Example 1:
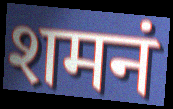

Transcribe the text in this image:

शमनं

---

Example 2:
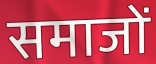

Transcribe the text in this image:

समाजों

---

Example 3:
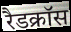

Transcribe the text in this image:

रैडक्रॉस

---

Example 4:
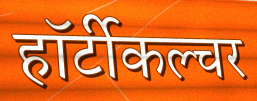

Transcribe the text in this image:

हॉर्टीकल्चर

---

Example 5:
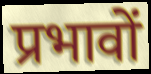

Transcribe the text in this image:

प्रभावों